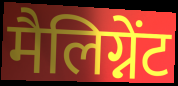
मैलिग्नेंट